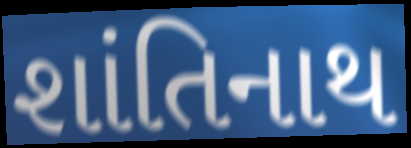
શાંતિનાથ